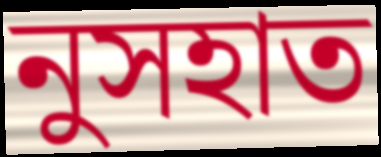
নুসহাত